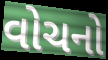
વોચનો